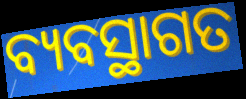
ବ୍ୟବସ୍ଥାଗତ